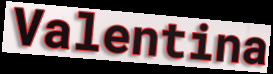
Valentina